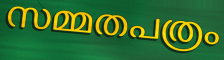
സമ്മതപത്രം